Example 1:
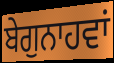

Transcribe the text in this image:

ਬੇਗੁਨਾਹਵਾਂ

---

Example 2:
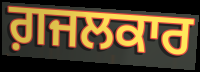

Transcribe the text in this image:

ਗ਼ਜਲਕਾਰ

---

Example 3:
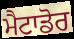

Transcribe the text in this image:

ਮੈਟਾਡੋਰ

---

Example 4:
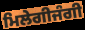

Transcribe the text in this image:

ਮਿਲੇਗੀਜੰਗੀ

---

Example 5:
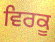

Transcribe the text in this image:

ਵਿਰਕੂ